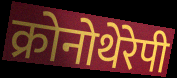
क्रोनोथेरेपी